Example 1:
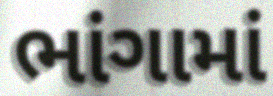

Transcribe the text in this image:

ભાંગામાં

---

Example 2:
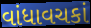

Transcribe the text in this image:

વાંધાવચકાં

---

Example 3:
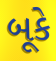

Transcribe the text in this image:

બૂકે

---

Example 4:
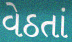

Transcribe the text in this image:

વેઠતાં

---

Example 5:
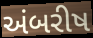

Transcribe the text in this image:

અંબરીષ